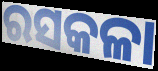
ରସକଳା